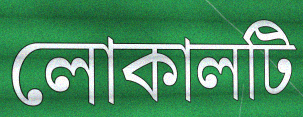
লোকালটি